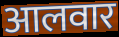
आलवार